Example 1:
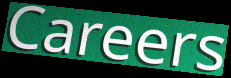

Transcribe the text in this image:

Careers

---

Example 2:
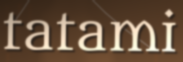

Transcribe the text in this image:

tatami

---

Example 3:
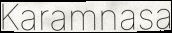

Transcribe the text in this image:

Karamnasa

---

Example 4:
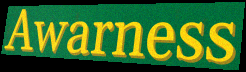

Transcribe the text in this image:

Awarness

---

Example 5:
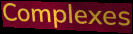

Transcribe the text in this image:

Complexes